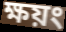
ক্ষয়ং